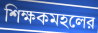
শিক্ষকমহলের